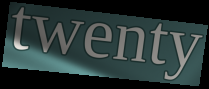
twenty